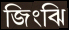
জিংঝি